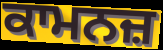
ਕਾਮਨਜ਼